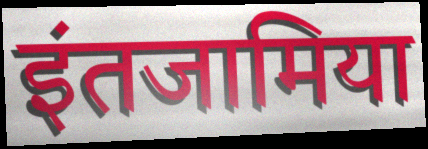
इंतजामिया